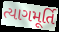
ત્યાગમૂર્તિ